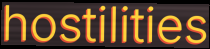
hostilities